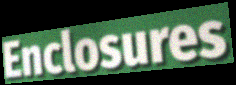
Enclosures